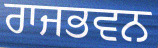
ਰਾਜਭਵਨ